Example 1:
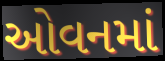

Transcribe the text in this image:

ઓવનમાં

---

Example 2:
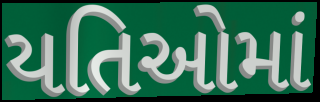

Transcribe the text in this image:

યતિઓમાં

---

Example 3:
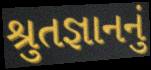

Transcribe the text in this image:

શ્રુતજ્ઞાનનું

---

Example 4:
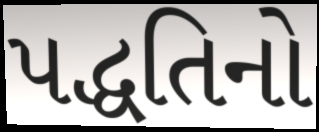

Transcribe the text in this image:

પદ્ધતિનો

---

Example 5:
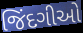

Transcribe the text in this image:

જિંદગીઓ